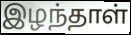
இழந்தாள்